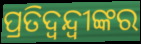
ପ୍ରତିଦ୍ୱନ୍ଦ୍ୱୀଙ୍କର